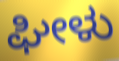
ಘೀಳು